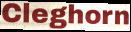
Cleghorn